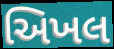
અિખલ